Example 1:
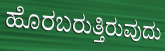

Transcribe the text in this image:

ಹೊರಬರುತ್ತಿರುವುದು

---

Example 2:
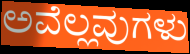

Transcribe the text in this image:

ಅವೆಲ್ಲವುಗಳು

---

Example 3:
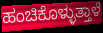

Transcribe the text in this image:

ಹಂಚಿಕೊಳ್ಳುತ್ತಾಳೆ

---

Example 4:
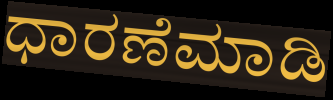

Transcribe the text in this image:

ಧಾರಣೆಮಾಡಿ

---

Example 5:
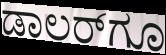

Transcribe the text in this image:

ಡಾಲರ್‌ಗೂ